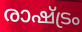
രാഷ്ട്രം